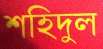
শহিদুল